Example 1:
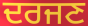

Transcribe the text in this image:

ਦਰਜਣ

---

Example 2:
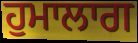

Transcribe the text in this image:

ਹੁਮਾਲਾਗ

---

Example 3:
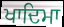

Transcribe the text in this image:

ਖਾਦਿਮਾ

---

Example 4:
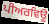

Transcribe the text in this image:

ਪੀਅਰਵਿਊ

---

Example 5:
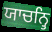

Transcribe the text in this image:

ਯਾਚਨ੍ਤਿ